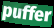
puffer